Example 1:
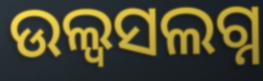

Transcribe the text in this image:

ଉଲ୍ୱସଲଗ୍ନ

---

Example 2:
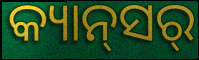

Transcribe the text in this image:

କ୍ୟାନ୍‍ସର୍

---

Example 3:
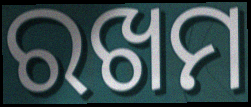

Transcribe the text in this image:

ରଖମ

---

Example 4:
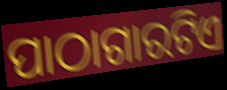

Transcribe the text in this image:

ପାଠାଗାରଟିଏ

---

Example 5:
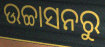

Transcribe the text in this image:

ଉଚ୍ଚାସନରୁ